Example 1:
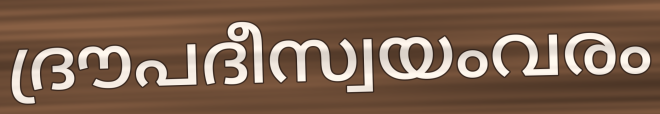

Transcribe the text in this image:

ദ്രൗപദീസ്വയംവരം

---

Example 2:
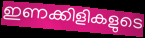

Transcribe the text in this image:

ഇണക്കിളികളുടെ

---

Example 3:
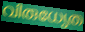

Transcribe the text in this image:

വിരുധ്യേത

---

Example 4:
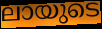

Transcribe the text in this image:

ലായുടെ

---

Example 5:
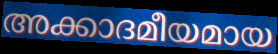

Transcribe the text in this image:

അക്കാദമീയമായ